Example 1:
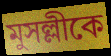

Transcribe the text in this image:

মুসল্লীকে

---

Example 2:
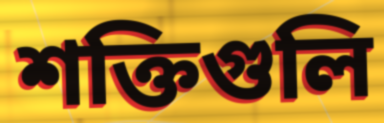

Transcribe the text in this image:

শক্তিগুলি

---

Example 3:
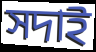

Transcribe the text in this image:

সদাই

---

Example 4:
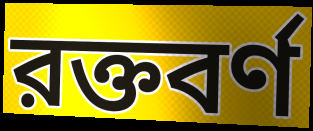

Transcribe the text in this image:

রক্তবর্ণ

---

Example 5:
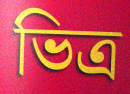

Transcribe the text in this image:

ভিত্র